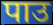
पाउ